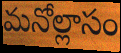
మనోల్లాసం